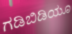
ಗಡಿಬಿಡಿಯೂ